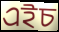
এইচ